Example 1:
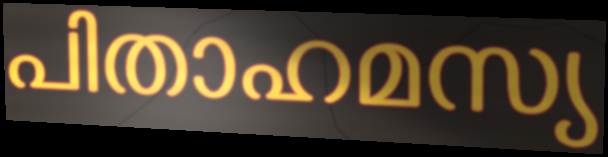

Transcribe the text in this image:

പിതാഹമസ്യ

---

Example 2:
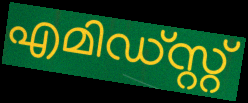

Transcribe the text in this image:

എമിഡ്സ്റ്റ്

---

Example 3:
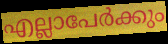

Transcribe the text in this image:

എല്ലാപേർക്കും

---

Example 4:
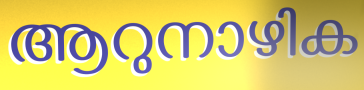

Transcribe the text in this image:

ആറുനാഴിക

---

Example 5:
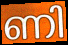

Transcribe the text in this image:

ണി